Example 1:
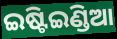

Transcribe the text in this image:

ଇଷ୍ଟିଇଣ୍ଡିଆ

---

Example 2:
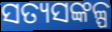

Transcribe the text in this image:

ସତ୍ୟସଙ୍କଳ୍ପ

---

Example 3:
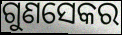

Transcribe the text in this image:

ଗୁଣସେକର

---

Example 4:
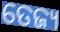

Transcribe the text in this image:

ତେଜ୍ୟ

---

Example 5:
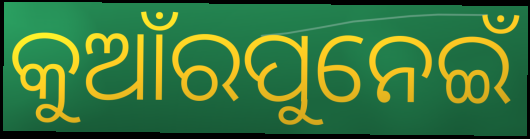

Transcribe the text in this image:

କୁଆଁରପୁନେଇଁ